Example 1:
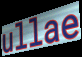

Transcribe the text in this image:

ullae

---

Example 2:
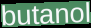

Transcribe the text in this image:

butanol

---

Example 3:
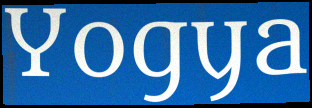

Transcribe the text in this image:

Yogya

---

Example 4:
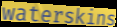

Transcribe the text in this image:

waterskins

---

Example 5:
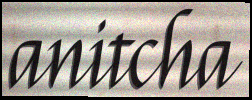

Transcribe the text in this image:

anitcha